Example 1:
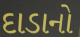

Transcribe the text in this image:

દાડાનો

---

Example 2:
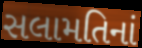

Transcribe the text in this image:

સલામતિનાં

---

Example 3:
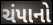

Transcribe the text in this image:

ચંપાનો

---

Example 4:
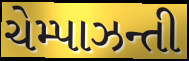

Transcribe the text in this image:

ચેમ્પાઝન્તી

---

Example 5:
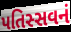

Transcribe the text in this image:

પતિસ્સવનં